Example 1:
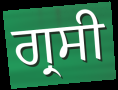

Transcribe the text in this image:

ਗ੍ਰਸੀ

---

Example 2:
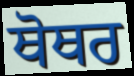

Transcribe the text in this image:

ਥੋਥਰ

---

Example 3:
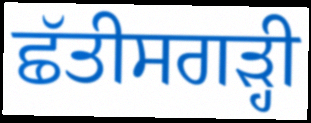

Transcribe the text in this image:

ਛੱਤੀਸਗੜ੍ਹੀ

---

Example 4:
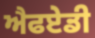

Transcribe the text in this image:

ਐਫਏਡੀ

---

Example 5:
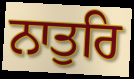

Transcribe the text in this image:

ਨਾਤੁਰਿ